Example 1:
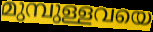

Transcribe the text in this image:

മുമ്പുള്ളവയെ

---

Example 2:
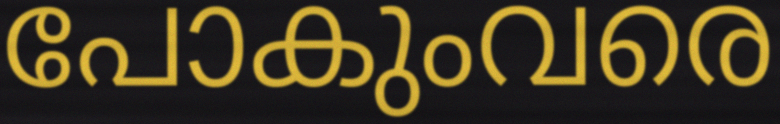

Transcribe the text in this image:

പോകുംവരെ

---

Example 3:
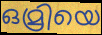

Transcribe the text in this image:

ഒമ്രിയെ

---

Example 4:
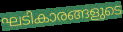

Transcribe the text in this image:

ഘടികാരങ്ങളുടെ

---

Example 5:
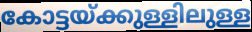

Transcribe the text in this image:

കോട്ടയ്ക്കുള്ളിലുള്ള